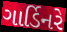
ગાર્ડિનરે